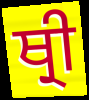
ਥ੍ਰੀ